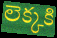
లెక్కకి